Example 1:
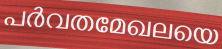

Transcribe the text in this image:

പർവതമേഖലയെ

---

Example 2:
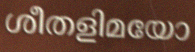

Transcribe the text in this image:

ശീതളിമയോ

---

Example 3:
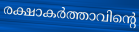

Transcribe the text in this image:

രക്ഷാകർത്താവിന്റെ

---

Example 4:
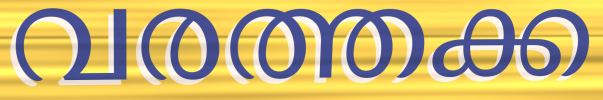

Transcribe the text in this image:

വരത്തക്ക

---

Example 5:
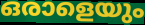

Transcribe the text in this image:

ഒരാളെയും